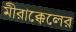
মীরাক্কেলের